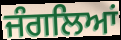
ਜੰਗਲਿਆਂ